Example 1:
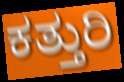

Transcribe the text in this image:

ಕತ್ತುರಿ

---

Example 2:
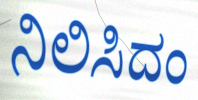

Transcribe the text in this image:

ನಿಲಿಸಿದಂ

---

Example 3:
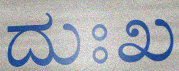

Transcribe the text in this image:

ದುಃಖ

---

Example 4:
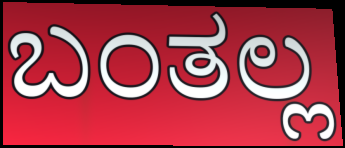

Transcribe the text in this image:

ಬಂತಲ್ಲ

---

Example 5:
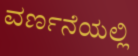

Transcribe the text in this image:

ವರ್ಣನೆಯಲ್ಲಿ